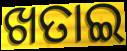
ଖତାଇ